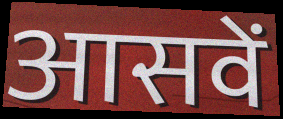
आसवें